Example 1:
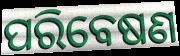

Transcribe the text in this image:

ପରିବେଷଣ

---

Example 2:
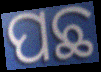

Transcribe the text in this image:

ପଛ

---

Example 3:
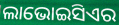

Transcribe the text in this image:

ଲାଭୋଇସିଏର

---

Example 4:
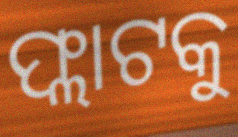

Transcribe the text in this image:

ଫ୍ଲାଟକୁ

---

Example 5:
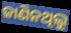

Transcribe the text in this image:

ଜାଣିନଥିଲୁ